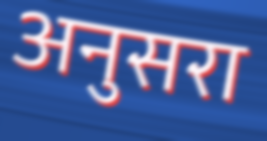
अनुसरा